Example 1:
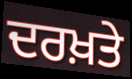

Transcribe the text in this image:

ਦਰਖ਼ਤੇ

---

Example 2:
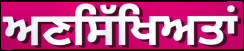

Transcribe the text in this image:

ਅਣਸਿੱਖਿਅਤਾਂ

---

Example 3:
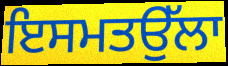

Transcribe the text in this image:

ਇਸਮਤਉੱਲਾ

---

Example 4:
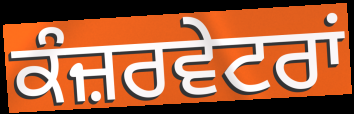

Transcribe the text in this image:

ਕੰਜ਼ਰਵੇਟਰਾਂ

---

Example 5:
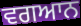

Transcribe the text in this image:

ਵਗਆਨ